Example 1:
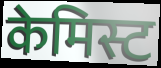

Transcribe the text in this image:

केमिस्ट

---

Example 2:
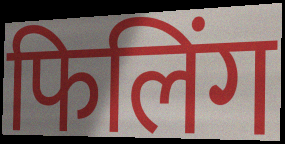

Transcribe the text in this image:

फिलिंग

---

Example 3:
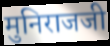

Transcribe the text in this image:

मुनिराजजी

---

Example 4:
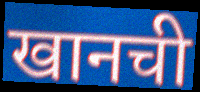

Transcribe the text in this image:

खानची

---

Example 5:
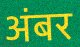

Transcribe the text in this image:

अंबर